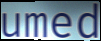
umed